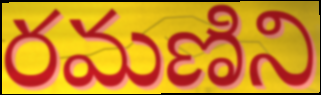
రమణిని